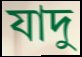
যাদু